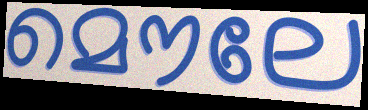
മൌലേ